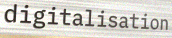
digitalisation